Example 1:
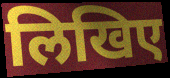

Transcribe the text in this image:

लिखिए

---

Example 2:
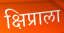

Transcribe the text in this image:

क्षिप्राला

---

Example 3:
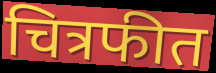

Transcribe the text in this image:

चित्रफीत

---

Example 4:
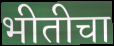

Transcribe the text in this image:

भीतीचा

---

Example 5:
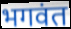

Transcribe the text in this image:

भगवंत